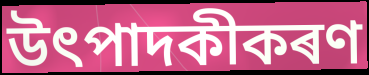
উৎপাদকীকৰণ